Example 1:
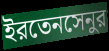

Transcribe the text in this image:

ইরতেনসেনুর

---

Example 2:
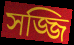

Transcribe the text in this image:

সজ্জি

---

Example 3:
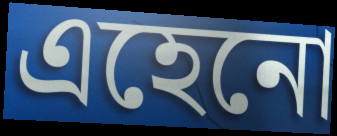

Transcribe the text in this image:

এহেনো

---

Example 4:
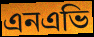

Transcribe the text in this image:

এনএভি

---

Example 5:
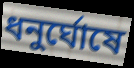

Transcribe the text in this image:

ধনুর্ঘোষে